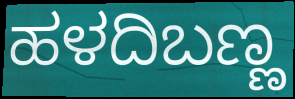
ಹಳದಿಬಣ್ಣ